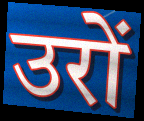
उरों